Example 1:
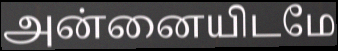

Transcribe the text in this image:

அன்னையிடமே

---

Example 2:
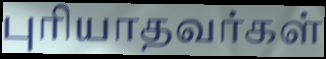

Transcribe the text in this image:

புரியாதவர்கள்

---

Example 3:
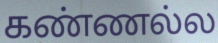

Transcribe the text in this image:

கண்ணல்ல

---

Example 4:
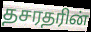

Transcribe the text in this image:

தசரதரின்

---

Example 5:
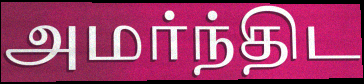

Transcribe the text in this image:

அமர்ந்திட